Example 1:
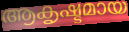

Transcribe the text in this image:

ആകൃഷ്ടമായ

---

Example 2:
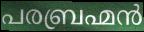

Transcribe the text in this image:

പരബ്രഹ്മൻ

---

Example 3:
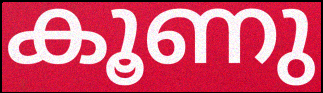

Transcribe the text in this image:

കൂണു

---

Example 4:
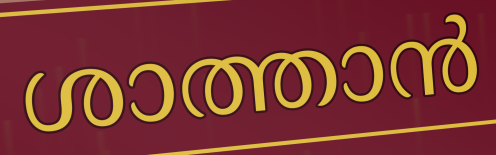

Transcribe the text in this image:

ശാത്താൻ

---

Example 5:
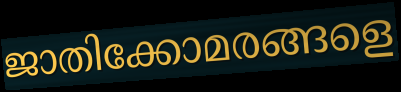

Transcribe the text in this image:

ജാതിക്കോമരങ്ങളെ